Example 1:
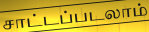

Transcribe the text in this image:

சாட்டப்படலாம்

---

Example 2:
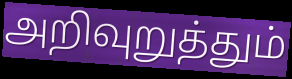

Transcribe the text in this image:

அறிவுறுத்தும்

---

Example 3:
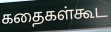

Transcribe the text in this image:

கதைகள்கூட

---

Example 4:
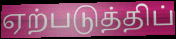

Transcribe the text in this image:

ஏற்படுத்திப்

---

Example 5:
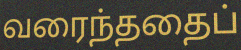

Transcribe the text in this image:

வரைந்ததைப்